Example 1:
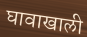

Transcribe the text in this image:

घावाखाली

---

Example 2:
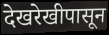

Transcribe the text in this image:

देखरेखीपासून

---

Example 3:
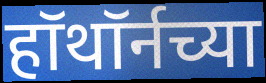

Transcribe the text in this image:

हॉथॉर्नच्या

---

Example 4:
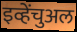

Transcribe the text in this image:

इव्हेंचुअल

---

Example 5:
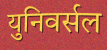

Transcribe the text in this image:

युनिवर्सल